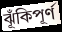
ঝূঁকিপূর্ণ